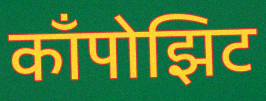
काँपोझिट